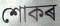
শোকৰ